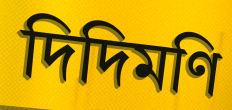
দিদিমণি